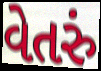
વેતરું